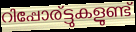
റിപ്പോര്ട്ടുകളുണ്ട്